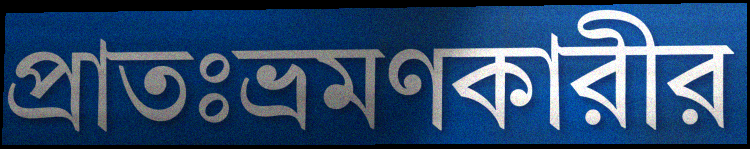
প্রাতঃভ্রমণকারীর